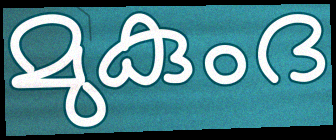
മുകുംദ